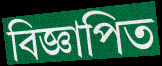
বিজ্ঞাপিত